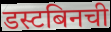
डस्टबिनची